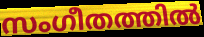
സംഗീതത്തിൽ